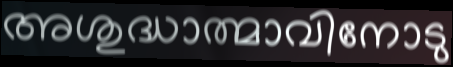
അശുദ്ധാത്മാവിനോടു